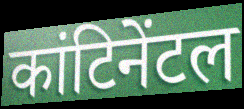
कांटिनेंटल